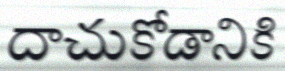
దాచుకోడానికి